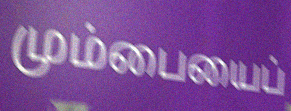
மும்பையைப்